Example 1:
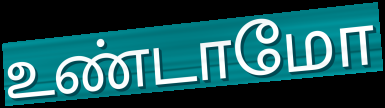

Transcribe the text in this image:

உண்டாமோ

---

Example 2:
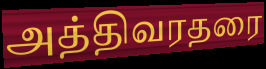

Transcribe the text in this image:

அத்திவரதரை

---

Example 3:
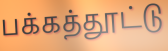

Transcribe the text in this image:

பக்கத்தூட்டு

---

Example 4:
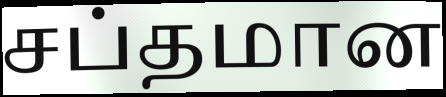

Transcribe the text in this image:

சப்தமான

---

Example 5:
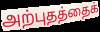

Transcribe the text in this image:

அற்புதத்தைக்